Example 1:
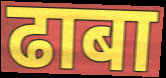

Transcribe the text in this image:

ढाबा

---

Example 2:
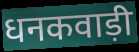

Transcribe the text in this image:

धनकवाड़ी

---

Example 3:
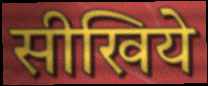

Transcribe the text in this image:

सीखिये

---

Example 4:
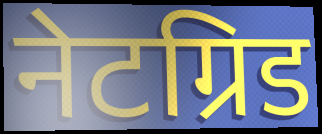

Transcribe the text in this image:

नेटग्रिड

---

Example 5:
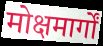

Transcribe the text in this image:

मोक्षमार्गों